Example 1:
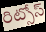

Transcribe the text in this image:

రిట్సోస్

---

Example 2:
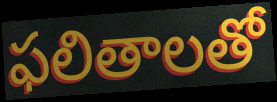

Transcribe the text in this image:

ఫలితాలతో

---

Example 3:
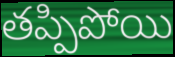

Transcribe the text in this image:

తప్పిపోయి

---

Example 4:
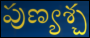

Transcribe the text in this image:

పుణ్యశ్చ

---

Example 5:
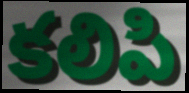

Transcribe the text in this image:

కలిపి